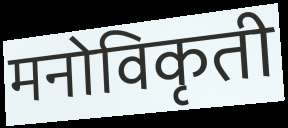
मनोविकृती